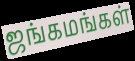
ஜங்கமங்கள்